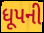
ધૂપની